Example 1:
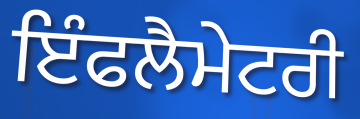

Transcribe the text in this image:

ਇੰਫਲੈਮੇਟਰੀ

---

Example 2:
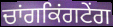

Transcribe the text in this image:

ਚਾਂਗਕਿਂਗਟੇਂਗ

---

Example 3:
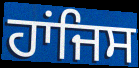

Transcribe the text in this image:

ਹਾਂਜਿਸ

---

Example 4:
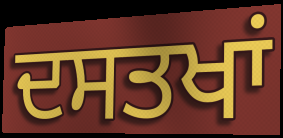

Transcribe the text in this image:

ਦਸਤਖਾਂ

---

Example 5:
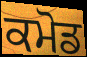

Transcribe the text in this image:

ਕਮੋਡ